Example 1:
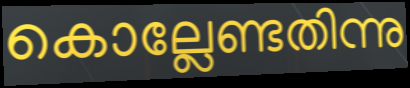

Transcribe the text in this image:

കൊല്ലേണ്ടതിന്നു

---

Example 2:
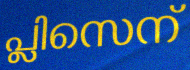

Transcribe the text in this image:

പ്ലിസെന്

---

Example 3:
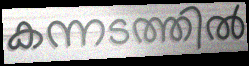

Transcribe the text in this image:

കന്നടത്തിൽ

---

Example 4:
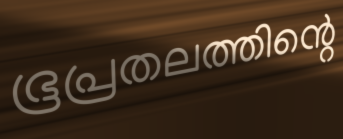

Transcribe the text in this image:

ഭൂപ്രതലത്തിന്റെ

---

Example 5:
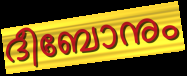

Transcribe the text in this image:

ദീബോനും